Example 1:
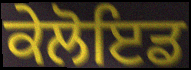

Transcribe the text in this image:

ਕੇਲੋਇਡ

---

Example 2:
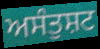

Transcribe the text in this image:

ਅਸੰਤੁਸ਼ਟ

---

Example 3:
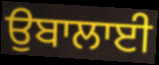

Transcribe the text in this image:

ਉਬਾਲਾਈ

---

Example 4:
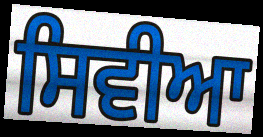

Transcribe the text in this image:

ਸਿਵੀਆ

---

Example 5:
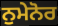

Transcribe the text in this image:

ਨੁਮੇਨੋਰ